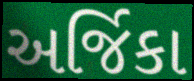
અર્જિકા